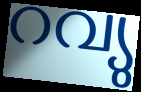
റവ്യു